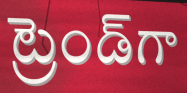
ట్రెండ్‌గా